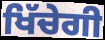
ਖਿੱਚੇਗੀ